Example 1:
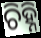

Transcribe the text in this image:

ଚିହ୍ନି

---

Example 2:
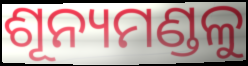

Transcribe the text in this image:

ଶୂନ୍ୟମଣ୍ଡଳୁ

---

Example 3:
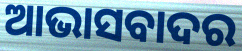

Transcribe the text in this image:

ଆଭାସବାଦର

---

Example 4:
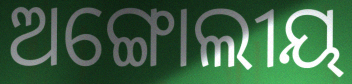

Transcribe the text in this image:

ଅଙ୍ଗୋଲୀୟ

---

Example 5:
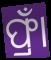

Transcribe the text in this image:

ଫ୍ରାଁ